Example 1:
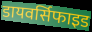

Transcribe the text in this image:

डायवर्सिफाइड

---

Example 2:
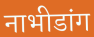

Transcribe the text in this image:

नाभीडांग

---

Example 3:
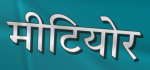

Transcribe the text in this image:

मीटियोर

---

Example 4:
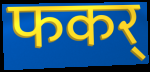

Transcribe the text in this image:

फकर्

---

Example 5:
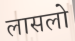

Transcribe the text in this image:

लासलो